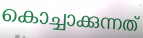
കൊച്ചാക്കുന്നത്